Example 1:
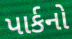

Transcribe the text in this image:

પાર્કનો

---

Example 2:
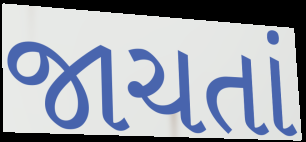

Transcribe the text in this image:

જાચતાં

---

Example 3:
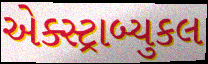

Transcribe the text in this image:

એક્સ્ટ્રાબ્યુકલ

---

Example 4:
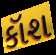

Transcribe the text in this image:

કૉશ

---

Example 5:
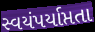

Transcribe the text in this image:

સ્વયંપર્યાપ્તતા